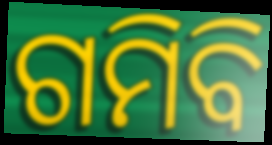
ଗମିବି